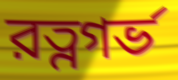
রত্নগর্ভ